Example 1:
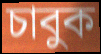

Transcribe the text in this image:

চাবুক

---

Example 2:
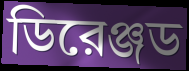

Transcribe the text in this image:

ডিরেঞ্জড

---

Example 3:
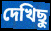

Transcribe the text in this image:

দেখিছু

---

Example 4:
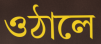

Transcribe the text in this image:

ওঠালে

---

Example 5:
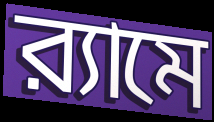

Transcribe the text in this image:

র‍্যামে